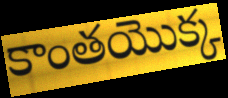
కాంతయొక్క